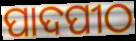
ପାଦପୀଠ